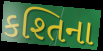
કશ્તિના